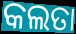
କଲତା